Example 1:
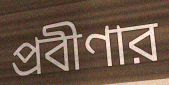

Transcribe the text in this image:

প্রবীণার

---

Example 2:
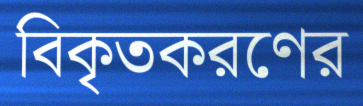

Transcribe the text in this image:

বিকৃতকরণের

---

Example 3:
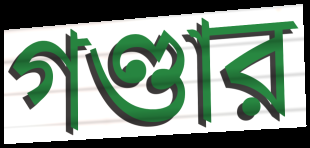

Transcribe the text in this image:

গণ্ডার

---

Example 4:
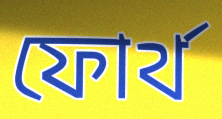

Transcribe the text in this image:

ফোর্থ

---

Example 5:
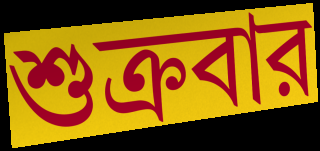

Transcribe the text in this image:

শুক্রবার